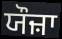
ਯੌਜ਼ਾ